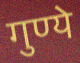
गुण्ये